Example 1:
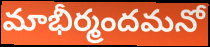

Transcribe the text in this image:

మాభీర్మందమనో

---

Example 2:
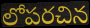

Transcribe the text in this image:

లోపరచిన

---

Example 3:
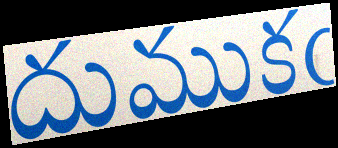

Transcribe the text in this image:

దుముకఁ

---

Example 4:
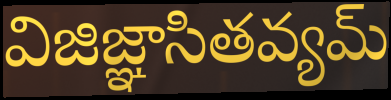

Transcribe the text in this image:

విజిజ్ఞాసితవ్యమ్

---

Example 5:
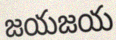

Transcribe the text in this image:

జయజయ